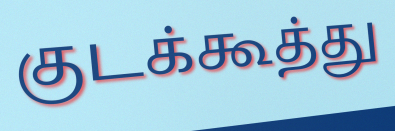
குடக்கூத்து